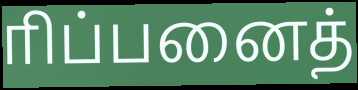
ரிப்பனைத்